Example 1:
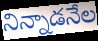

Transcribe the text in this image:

నిన్నాడనేల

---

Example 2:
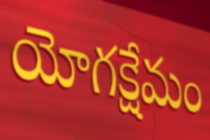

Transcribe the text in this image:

యోగక్షేమం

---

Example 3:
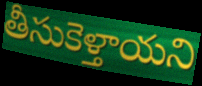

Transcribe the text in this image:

తీసుకెళ్తాయని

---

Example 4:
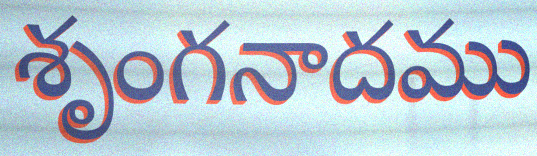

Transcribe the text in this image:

శృంగనాదము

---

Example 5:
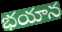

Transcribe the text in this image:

భయాన